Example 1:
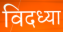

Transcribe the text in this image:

विदध्या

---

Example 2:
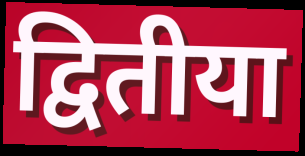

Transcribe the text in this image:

द्वितीया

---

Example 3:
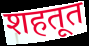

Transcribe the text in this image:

शहतूत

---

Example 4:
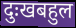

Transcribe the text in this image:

दुःखबहुल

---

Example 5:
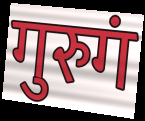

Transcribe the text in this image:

गुरुगं